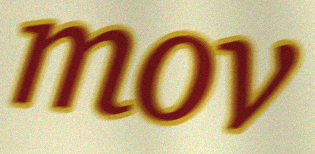
mov